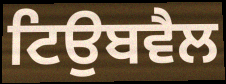
ਟਿਉਬਵੈਲ